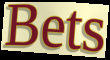
Bets